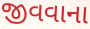
જીવવાના